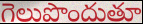
గెలుపొందుతూ